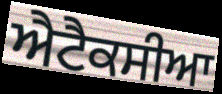
ਐਟੈਕਸੀਆ